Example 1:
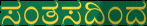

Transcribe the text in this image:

ಸಂತಸದಿಂದ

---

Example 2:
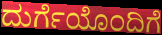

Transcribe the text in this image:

ದುರ್ಗೆಯೊಂದಿಗೆ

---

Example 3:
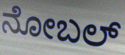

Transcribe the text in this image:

ನೋಬಲ್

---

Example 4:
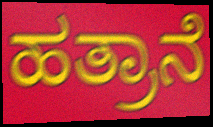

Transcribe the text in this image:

ಹತ್ರಾನೆ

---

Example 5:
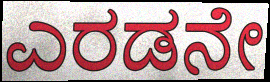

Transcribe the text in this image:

ಎರಡನೇ